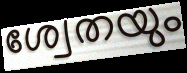
ശ്വേതയും